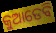
କୁଆଡେବି